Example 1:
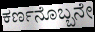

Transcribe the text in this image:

ಕರ್ಣನೊಬ್ಬನೇ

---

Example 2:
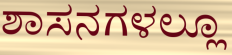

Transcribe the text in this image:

ಶಾಸನಗಳಲ್ಲೂ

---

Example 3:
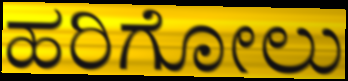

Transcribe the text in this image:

ಹರಿಗೋಲು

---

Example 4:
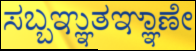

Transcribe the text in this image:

ಸಬ್ಬಞ್ಞುತಞ್ಞಾಣೇ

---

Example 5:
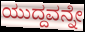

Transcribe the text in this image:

ಯುದ್ದವನ್ನೇ